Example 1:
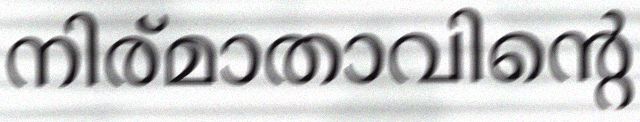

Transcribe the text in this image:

നിര്മാതാവിന്റെ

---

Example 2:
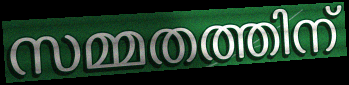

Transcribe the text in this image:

സമ്മതത്തിന്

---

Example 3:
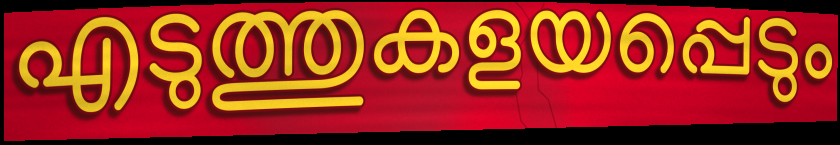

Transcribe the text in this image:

എടുത്തുകളയപ്പെടും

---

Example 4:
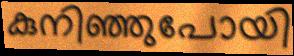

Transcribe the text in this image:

കുനിഞ്ഞുപോയി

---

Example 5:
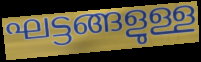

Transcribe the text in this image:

ഘട്ടങ്ങളുള്ള